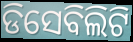
ଡିସେବିଲିଟି